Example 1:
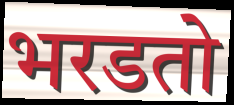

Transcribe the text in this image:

भरडतो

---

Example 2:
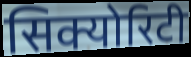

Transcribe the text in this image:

सिक्योरिटी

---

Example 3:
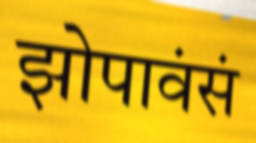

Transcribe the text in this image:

झोपावंसं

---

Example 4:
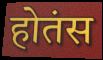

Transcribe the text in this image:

होतंस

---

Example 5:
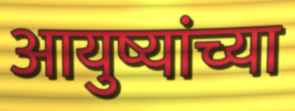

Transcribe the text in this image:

आयुष्यांच्या